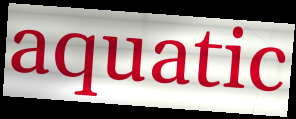
aquatic